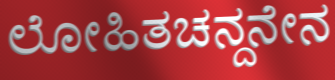
ಲೋಹಿತಚನ್ದನೇನ